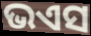
ଭଏସ